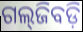
ଗଲ୍‌ଜିବଡ଼ି